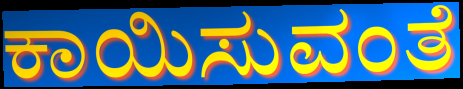
ಕಾಯಿಸುವಂತೆ